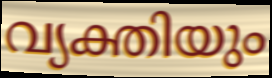
വ്യക്തിയും